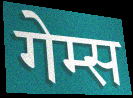
गेम्स